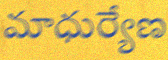
మాధుర్యేణ